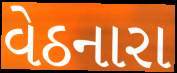
વેઠનારા